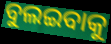
ବୁଲଇବାକୁ